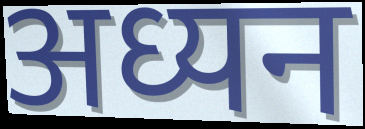
अध्यन